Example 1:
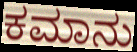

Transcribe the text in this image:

ಕಮಾನು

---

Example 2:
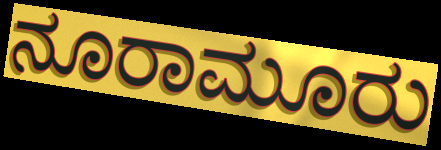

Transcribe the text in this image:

ನೂರಾಮೂರು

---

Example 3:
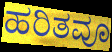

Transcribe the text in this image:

ಹರಿತವೂ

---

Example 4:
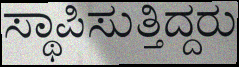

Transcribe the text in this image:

ಸ್ಥಾಪಿಸುತ್ತಿದ್ದರು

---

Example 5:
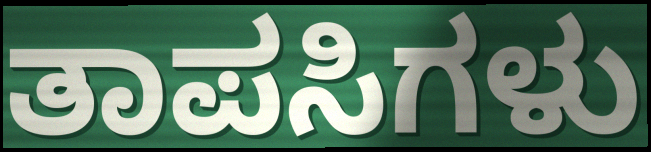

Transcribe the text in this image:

ತಾಪಸಿಗಳು